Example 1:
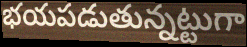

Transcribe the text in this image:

భయపడుతున్నట్టుగా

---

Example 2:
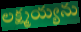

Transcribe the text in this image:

లక్ష్మయ్యను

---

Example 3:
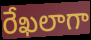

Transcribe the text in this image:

రేఖలాగా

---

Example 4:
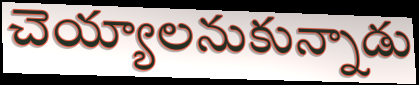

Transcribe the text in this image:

చెయ్యాలనుకున్నాడు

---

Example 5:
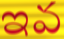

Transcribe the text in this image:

ఇవ